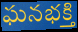
ఘనభక్తి